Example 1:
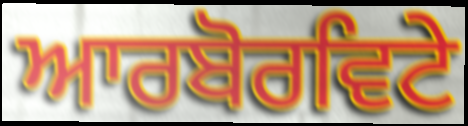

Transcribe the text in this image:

ਆਰਬੋਰਵਿਟੇ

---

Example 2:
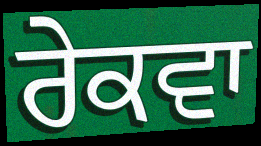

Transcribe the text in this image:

ਰੇਕਵਾ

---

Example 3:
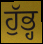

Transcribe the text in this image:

ਹੁੱਭ੍ਹ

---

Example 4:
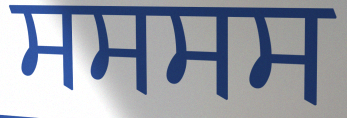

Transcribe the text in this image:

ਸਸਸਸ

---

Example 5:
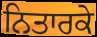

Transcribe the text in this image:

ਨਿਤਾਰਕੇ